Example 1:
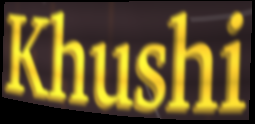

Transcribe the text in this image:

Khushi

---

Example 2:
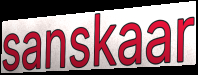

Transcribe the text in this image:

sanskaar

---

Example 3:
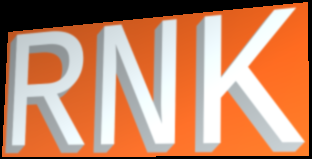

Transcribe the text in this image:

RNK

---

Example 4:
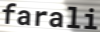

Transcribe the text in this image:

farali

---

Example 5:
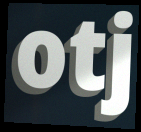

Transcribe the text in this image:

otj